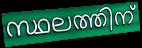
സ്ഥലത്തിന്